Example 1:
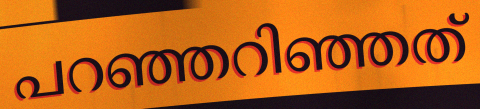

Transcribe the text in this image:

പറഞ്ഞറിഞ്ഞത്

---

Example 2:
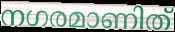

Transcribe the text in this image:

നഗരമാണിത്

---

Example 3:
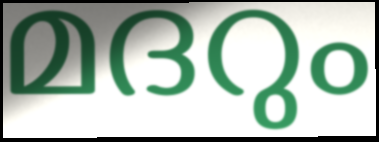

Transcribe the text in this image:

മദറും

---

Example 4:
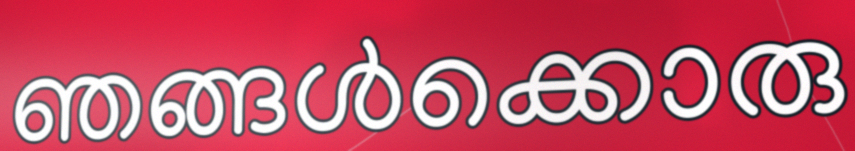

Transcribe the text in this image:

ഞങ്ങൾക്കൊരു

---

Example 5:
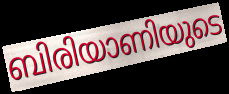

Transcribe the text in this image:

ബിരിയാണിയുടെ